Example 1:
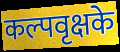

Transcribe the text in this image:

कल्पवृक्षके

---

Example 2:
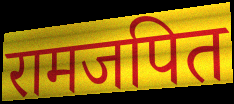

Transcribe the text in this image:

रामजपित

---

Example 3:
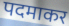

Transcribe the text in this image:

पदमाकर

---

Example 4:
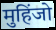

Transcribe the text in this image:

मुहिंजो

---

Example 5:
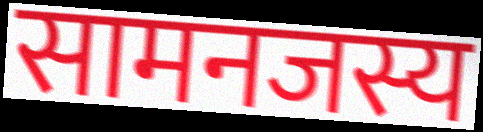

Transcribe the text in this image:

सामनजस्य